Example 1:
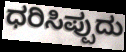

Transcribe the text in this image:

ಧರಿಸಿಪ್ಪುದು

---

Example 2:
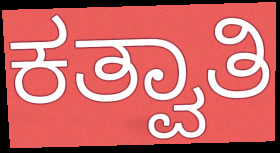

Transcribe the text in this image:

ಕತ್ವಾತಿ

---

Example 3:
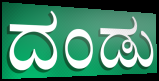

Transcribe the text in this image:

ದಂಡು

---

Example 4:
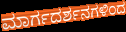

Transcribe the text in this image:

ಮಾರ್ಗದರ್ಶನಗಳಿಂದ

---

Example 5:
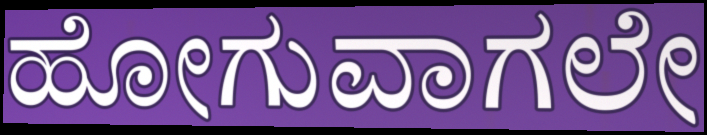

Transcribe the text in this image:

ಹೋಗುವಾಗಲೇ